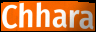
Chhara